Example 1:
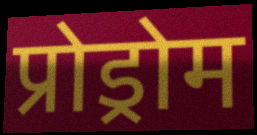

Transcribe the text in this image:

प्रोड्रोम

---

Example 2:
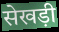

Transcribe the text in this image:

सेखड़ी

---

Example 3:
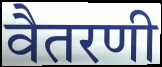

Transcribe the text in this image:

वैतरणी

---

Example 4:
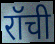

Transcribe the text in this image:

रॉची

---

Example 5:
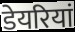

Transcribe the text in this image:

डेयरियां